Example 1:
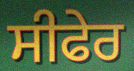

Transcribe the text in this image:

ਸੀਫੇਰ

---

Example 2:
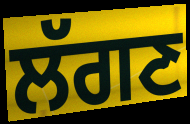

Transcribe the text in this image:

ਲੱਗਣ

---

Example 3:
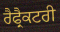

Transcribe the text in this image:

ਰੈਫ੍ਰੈਕਟਰੀ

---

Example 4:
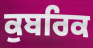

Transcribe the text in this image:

ਕੁਬਰਿਕ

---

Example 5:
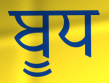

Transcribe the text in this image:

ਬੂਧ